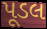
પૂડલ